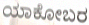
ಯಾಕೋಬರ